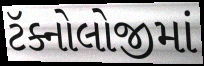
ટૅક્નોલોજીમાં